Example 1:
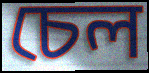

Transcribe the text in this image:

চেল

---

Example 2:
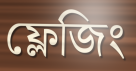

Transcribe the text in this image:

ফ্লেজিং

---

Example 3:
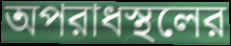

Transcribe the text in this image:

অপরাধস্থলের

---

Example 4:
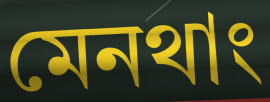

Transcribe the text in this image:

মেনথাং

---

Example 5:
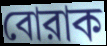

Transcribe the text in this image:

বোরাক